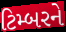
ટિમ્બરને